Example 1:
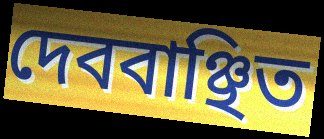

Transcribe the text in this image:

দেববাঞ্ছিত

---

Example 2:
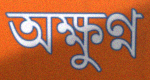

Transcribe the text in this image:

অক্ষুণ্ন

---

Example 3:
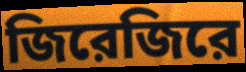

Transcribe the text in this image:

জিরেজিরে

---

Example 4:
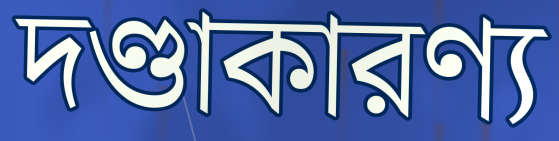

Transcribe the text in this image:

দণ্ডাকারণ্য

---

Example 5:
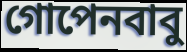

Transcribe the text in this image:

গোপেনবাবু